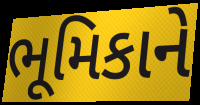
ભૂમિકાને